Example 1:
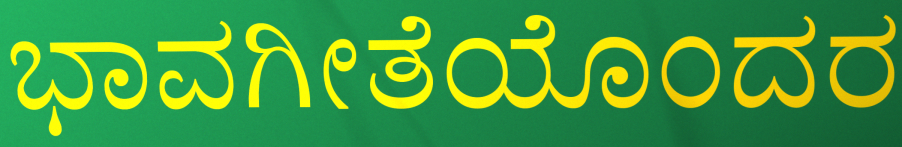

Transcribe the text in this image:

ಭಾವಗೀತೆಯೊಂದರ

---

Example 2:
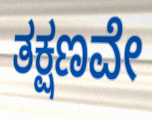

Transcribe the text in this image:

ತಕ್ಷಣವೇ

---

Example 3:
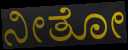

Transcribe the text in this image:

ನೀತೋ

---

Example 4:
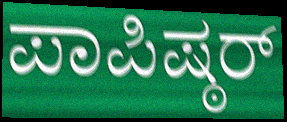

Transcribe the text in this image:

ಪಾಪಿಷ್ಠರ್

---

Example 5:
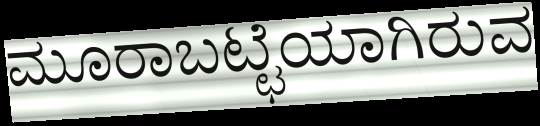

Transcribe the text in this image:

ಮೂರಾಬಟ್ಟೆಯಾಗಿರುವ